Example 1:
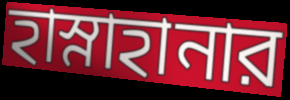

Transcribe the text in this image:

হাস্নাহানার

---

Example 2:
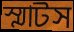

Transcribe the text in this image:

স্মাটস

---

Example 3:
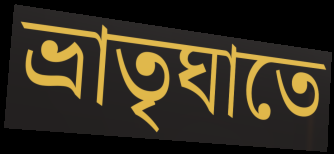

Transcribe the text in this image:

ভ্রাতৃঘাতে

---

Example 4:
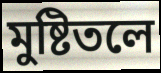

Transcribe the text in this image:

মুষ্টিতলে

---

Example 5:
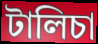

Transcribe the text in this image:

টালিচা